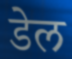
डेल